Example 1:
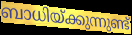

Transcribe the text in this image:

ബാധിയ്ക്കുന്നുണ്ട്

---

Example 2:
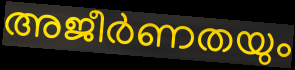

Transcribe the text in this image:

അജീർണതയും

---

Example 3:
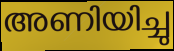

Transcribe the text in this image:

അണിയിച്ചു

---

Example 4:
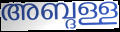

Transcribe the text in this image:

അബ്ദള്ള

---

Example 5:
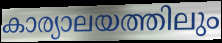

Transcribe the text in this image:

കാര്യാലയത്തിലും